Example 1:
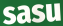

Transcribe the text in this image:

sasu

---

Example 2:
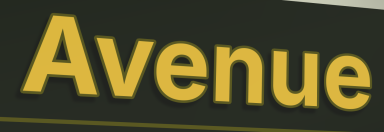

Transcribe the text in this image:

Avenue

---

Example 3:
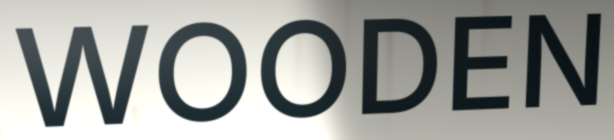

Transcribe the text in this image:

WOODEN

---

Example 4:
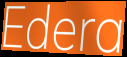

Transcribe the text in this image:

Edera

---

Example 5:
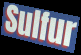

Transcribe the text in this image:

Sulfur